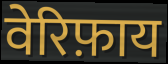
वेरिफ़ाय